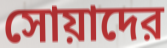
সোয়াদের